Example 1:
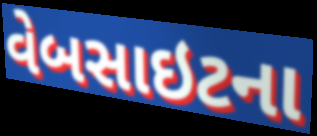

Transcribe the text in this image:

વેબસાઇટના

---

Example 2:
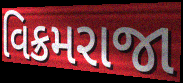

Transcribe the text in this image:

વિક્રમરાજા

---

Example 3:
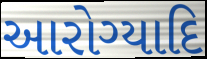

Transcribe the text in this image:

આરોગ્યાદિ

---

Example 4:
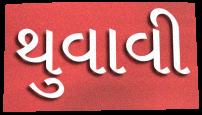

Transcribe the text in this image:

થુવાવી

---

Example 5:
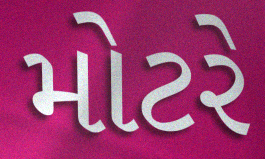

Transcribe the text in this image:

મોટરે